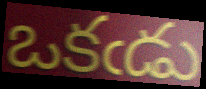
ఒకఁడు